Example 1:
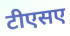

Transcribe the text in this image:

टीएसए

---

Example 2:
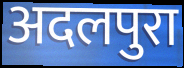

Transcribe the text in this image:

अदलपुरा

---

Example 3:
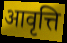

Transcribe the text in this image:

आवृत्ति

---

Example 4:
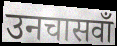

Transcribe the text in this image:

उनचासवाँ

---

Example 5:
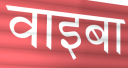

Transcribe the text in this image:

वाइबा